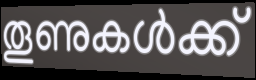
തൂണുകൾക്ക്